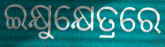
ଇକ୍ଷୁକ୍ଷେତ୍ରରେ